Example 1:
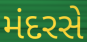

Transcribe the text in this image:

મંદરસે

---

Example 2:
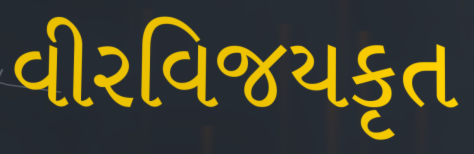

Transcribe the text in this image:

વીરવિજયકૃત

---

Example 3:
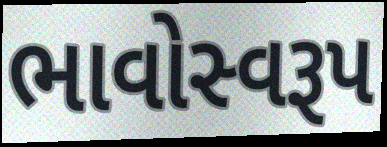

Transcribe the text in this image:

ભાવોસ્વરૂપ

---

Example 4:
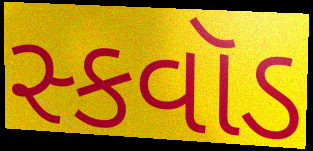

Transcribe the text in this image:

સ્કવૉડ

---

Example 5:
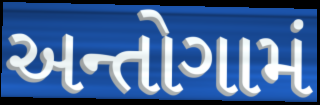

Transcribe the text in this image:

અન્તોગામં